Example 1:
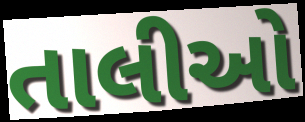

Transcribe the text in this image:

તાલીઓ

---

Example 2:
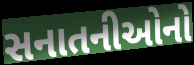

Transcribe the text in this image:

સનાતનીઓનો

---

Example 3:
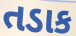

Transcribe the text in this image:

તડાક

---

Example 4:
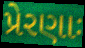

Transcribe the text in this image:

પ્રેરણાઃ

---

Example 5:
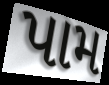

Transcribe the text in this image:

પામ